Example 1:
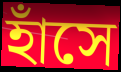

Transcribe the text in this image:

হাঁসে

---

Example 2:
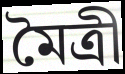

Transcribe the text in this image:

মৈত্রী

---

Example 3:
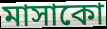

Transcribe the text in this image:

মাসাকো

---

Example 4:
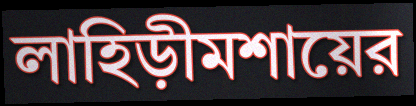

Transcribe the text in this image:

লাহিড়ীমশায়ের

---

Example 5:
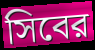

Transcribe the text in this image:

সিবের